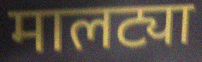
मालट्या